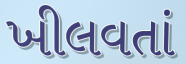
ખીલવતાં